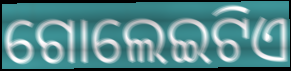
ଗୋଲେଇଟିଏ